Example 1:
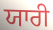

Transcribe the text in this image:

ਯਾਰੀ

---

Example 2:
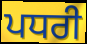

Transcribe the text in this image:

ਪਧਰੀ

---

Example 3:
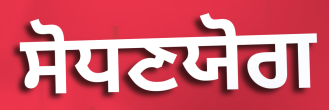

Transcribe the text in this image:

ਸੋਧਣਯੋਗ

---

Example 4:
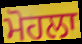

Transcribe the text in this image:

ਮੋਹਲਾ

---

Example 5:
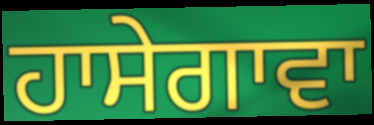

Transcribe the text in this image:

ਹਾਸੇਗਾਵਾ